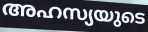
അഹസ്യയുടെ